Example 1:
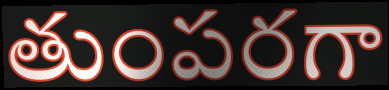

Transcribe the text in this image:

తుంపరగా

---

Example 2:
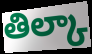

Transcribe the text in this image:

తిల్కా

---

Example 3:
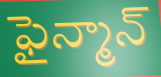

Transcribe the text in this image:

ఫైన్మాన్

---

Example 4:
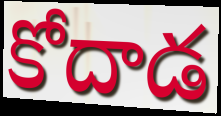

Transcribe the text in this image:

కోదాడ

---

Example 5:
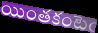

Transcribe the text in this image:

యింతకంటెఁ